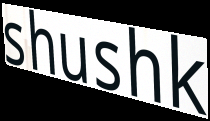
shushk